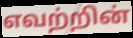
எவற்றின்